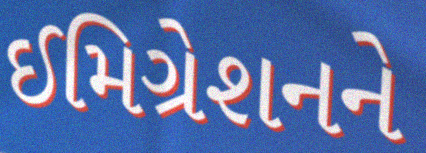
ઈમિગ્રેશનને